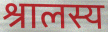
श्रालस्य